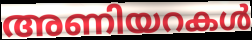
അണിയറകൾ